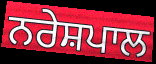
ਨਰੇਸ਼ਪਾਲ